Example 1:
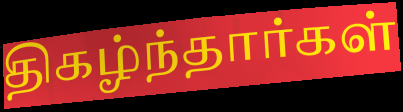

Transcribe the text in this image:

திகழ்ந்தார்கள்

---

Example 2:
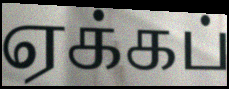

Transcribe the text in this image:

ஏக்கப்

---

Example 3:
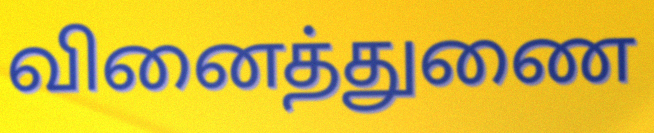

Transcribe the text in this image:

வினைத்துணை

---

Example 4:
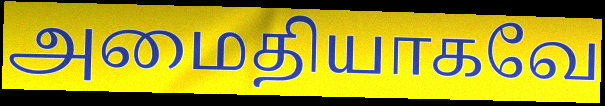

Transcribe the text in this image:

அமைதியாகவே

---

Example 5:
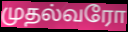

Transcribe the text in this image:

முதல்வரோ